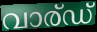
വാര്ഡ്